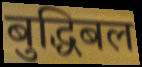
बुद्धिबल